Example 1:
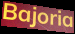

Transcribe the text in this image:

Bajoria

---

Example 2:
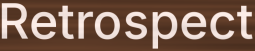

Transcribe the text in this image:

Retrospect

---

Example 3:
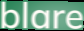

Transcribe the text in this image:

blare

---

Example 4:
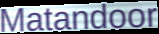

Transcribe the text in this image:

Matandoor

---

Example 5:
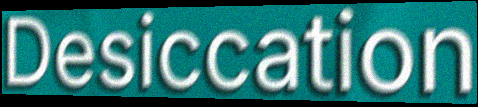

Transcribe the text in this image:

Desiccation